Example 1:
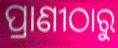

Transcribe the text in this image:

ପ୍ରାଣୀଠାରୁ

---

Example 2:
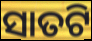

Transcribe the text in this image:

ସାତଟି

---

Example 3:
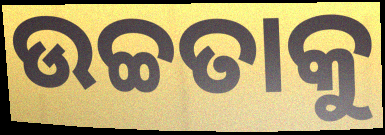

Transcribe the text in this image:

ଉଚ୍ଚତାକୁ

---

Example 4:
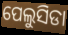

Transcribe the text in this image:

ପେଲୁସିଡା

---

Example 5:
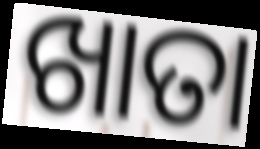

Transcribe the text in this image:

ଖାତା